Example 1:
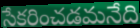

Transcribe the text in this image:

సేకరించడమనేది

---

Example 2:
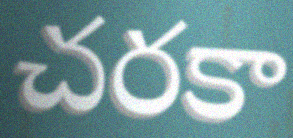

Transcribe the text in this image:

చరకా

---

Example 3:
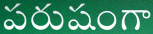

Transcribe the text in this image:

పరుషంగా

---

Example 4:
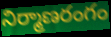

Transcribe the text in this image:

నిర్మాణరంగం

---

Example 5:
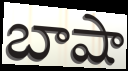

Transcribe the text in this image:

బాషా